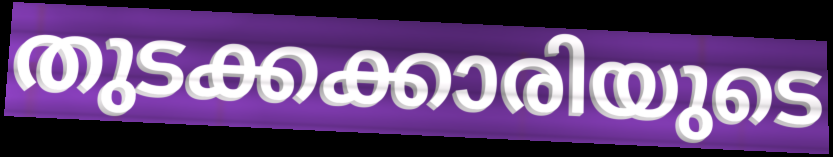
തുടക്കക്കാരിയുടെ